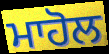
ਮਾਹੋਲ